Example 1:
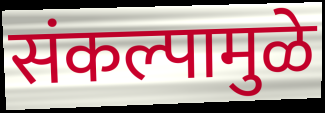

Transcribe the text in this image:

संकल्पामुळे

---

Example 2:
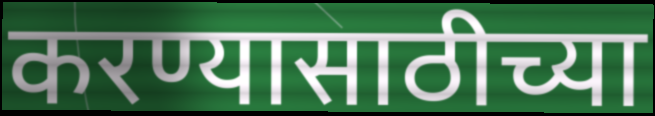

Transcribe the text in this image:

करण्यासाठीच्या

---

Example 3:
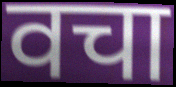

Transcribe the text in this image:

वचा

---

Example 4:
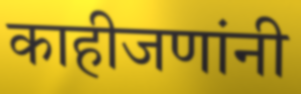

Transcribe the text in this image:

काहीजणांनी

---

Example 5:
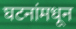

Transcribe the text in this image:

घटनांमधून